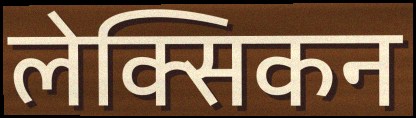
लेक्सिकन